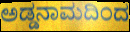
ಅಡ್ಡನಾಮದಿಂದ